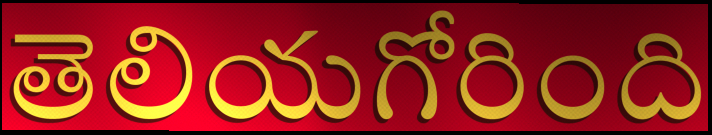
తెలియగోరింది